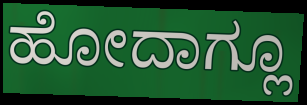
ಹೋದಾಗ್ಲೂ